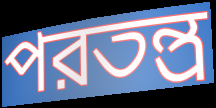
পরতন্ত্র